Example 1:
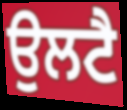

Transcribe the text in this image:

ਉਲਟੈ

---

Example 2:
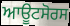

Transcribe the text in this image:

ਆਊਟਸੋਰਸ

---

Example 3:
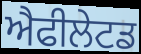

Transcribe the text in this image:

ਐਫੀਲੇਟਡ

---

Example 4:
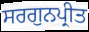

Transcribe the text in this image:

ਸਰਗੁਨਪ੍ਰੀਤ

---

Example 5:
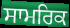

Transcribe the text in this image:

ਸਾਮਰਿਕ